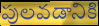
పులవడానికి